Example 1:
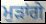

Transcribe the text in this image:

ਮੁੜਾਂਗੇ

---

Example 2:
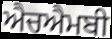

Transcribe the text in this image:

ਐਚਐਮਬੀ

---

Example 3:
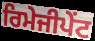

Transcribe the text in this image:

ਰਿਮੇਜੀਪੇਂਟ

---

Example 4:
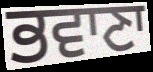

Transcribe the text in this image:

ਭਵਾਣਾ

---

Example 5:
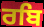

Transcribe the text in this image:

ਰਬਿ